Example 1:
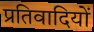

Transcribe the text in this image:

प्रतिवादियों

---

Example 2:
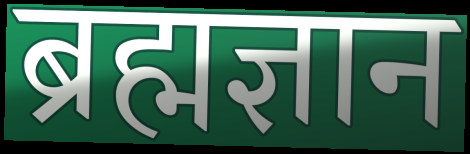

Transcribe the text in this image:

ब्रह्मज्ञान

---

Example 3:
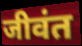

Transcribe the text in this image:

जीवंत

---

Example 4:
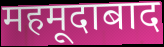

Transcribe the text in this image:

महमूदाबाद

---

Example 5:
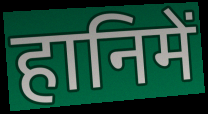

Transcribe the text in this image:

हानिमें